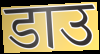
डाउ